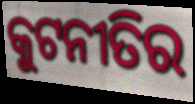
କୁଟନୀତିର